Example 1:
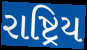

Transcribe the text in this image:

રાષ્ટ્રિય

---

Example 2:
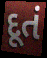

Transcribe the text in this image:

દૂતં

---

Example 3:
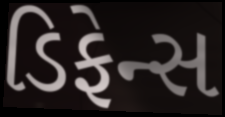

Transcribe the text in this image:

ડિફેન્સ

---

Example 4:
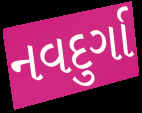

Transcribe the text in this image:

નવદુર્ગા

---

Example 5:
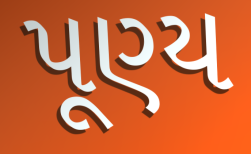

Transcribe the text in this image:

પૂણ્ય